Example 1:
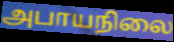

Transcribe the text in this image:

அபாயநிலை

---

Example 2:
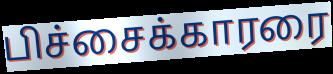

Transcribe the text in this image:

பிச்சைக்காரரை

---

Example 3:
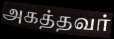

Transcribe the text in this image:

அகத்தவர்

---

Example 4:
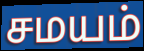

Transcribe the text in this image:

சமயம்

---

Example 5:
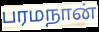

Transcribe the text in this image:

பரமநான்